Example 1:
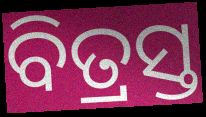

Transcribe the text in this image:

ବିତ୍ରସ୍ତ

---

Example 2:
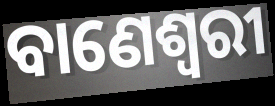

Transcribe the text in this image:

ବାଣେଶ୍ୱରୀ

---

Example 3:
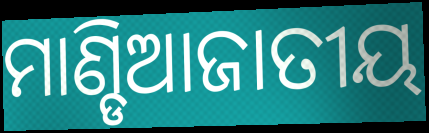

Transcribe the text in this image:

ମାଣ୍ଡିଆଜାତୀୟ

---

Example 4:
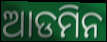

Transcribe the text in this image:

ଆଡମିନ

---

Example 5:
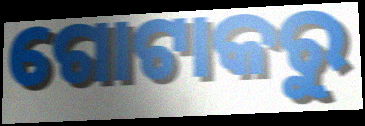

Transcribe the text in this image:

ଗୋଟାକରୁ